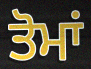
ਤੋਮਾਂ